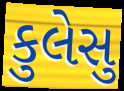
કુલેસુ